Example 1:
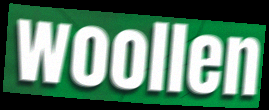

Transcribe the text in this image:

woollen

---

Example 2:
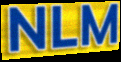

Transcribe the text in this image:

NLM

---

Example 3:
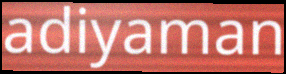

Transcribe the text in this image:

adiyaman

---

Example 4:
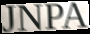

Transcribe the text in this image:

JNPA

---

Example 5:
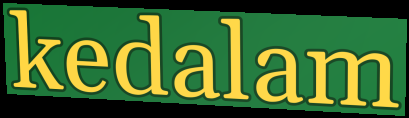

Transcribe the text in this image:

kedalam